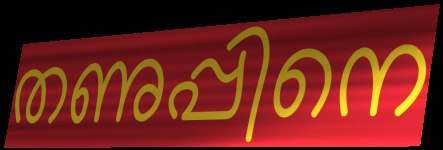
തണുപ്പിനെ